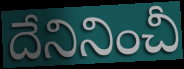
దేనినించీ